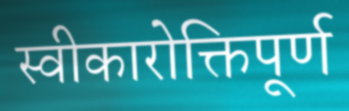
स्वीकारोक्तिपूर्ण